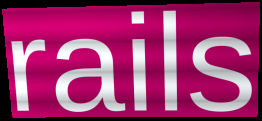
rails